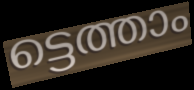
ട്ടെത്താം